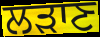
ਲੜਾਣ